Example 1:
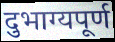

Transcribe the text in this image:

दुभाग्यपूर्ण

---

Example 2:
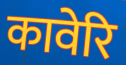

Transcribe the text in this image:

कावेरि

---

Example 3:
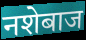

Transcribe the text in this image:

नशेबाज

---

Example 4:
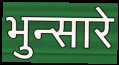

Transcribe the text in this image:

भुन्सारे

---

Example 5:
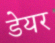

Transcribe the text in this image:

डेयर